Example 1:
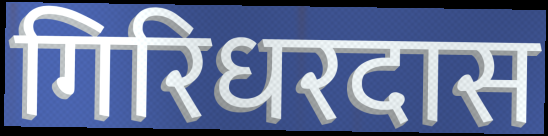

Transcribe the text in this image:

गिरिधरदास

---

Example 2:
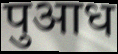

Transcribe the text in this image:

पुआध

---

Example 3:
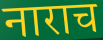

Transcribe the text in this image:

नाराच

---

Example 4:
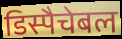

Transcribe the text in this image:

डिस्पैचेबल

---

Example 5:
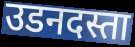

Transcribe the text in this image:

उडनदस्ता